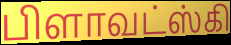
பிளாவட்ஸ்கி